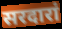
सरदारां